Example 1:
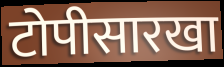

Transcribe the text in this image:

टोपीसारखा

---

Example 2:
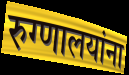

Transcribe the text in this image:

रुग्णालयांना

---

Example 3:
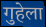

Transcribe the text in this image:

गुहेला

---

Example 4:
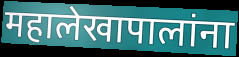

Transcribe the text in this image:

महालेखापालांना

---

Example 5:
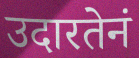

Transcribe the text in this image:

उदारतेनं